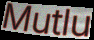
Mutlu